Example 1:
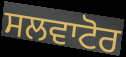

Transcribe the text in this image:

ਸਲਵਾਟੋਰ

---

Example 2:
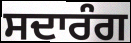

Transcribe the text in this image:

ਸਦਾਰੰਗ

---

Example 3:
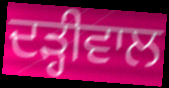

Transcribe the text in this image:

ਦੜ੍ਹੀਵਾਲ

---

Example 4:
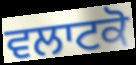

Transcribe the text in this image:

ਵਲਾਟਕੋ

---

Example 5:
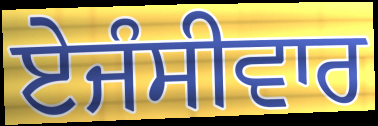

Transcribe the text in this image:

ਏਜੰਸੀਵਾਰ